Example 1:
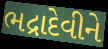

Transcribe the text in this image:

ભદ્રાદેવીને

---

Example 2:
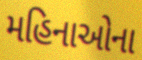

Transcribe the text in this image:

મહિનાઓના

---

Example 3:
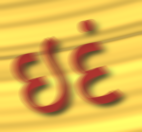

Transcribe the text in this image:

ઇદં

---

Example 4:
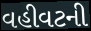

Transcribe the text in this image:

વહીવટની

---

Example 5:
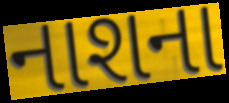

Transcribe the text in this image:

નાશના